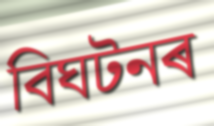
বিঘটনৰ